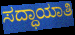
ಸದ್ಧಾಯಾತಿ